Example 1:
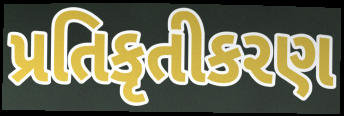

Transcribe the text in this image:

પ્રતિકૃતીકરણ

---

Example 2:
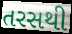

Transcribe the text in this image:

તરસથી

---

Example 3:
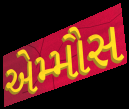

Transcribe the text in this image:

એમ્મૌસ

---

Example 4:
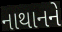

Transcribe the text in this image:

નાથાનને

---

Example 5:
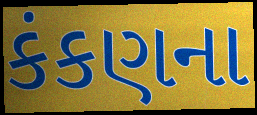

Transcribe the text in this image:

કંકણના